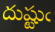
దుష్టుఁ